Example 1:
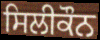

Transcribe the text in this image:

ਸਿਲੀਕੌਨ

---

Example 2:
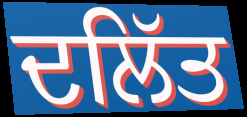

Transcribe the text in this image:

ਦਲਿੱਤ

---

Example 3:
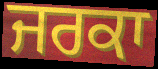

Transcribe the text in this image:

ਜਰਕਾ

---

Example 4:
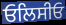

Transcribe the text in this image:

ਓਲਿਸੀਓ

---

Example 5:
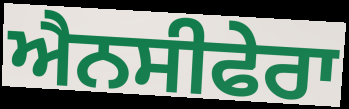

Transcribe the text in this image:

ਐਨਸੀਫੇਰਾ